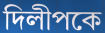
দিলীপকে